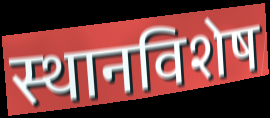
स्थानविशेष